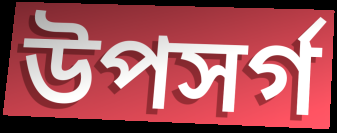
উপসৰ্গ